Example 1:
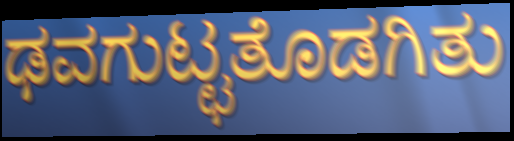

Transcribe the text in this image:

ಢವಗುಟ್ಟತೊಡಗಿತು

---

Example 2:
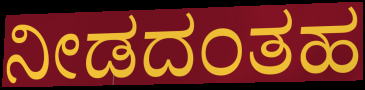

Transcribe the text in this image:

ನೀಡದಂತಹ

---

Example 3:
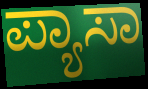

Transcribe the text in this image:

ಪ್ಯಾಸಾ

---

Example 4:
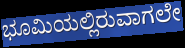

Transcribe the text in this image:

ಭೂಮಿಯಲ್ಲಿರುವಾಗಲೇ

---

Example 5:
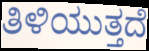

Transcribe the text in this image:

ತಿಳಿಯುತ್ತದೆ